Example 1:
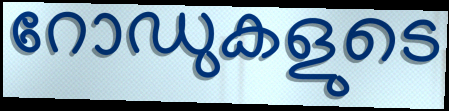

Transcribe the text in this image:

റോഡുകളുടെ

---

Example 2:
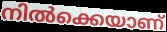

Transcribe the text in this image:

നിൽക്കെയാണ്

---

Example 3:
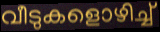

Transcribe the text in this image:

വീടുകളൊഴിച്ച്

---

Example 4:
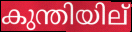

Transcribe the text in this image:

കുന്തിയില്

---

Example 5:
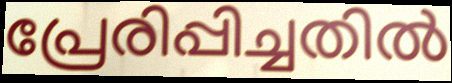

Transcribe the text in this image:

പ്രേരിപ്പിച്ചതിൽ